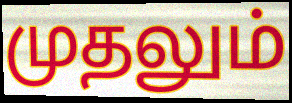
முதலும்